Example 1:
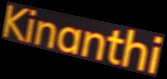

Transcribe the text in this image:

Kinanthi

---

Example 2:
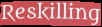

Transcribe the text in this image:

Reskilling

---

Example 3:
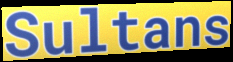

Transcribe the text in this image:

Sultans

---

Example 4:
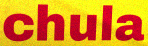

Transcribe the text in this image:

chula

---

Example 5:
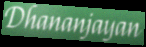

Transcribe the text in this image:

Dhananjayan